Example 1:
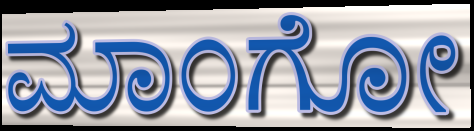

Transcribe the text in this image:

ಮಾಂಗೋ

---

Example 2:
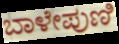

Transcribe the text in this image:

ಬಾಳೇಪುಣಿ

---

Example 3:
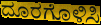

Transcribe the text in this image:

ದೂರಗೊಳಿಸಿ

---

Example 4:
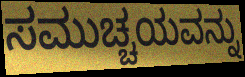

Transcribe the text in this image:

ಸಮುಚ್ಚಯವನ್ನು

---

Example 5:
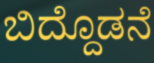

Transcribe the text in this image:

ಬಿದ್ದೊಡನೆ